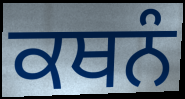
ਕਥਨੰ